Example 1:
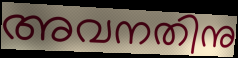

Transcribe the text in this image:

അവനതിനു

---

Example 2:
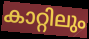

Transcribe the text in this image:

കാറ്റിലും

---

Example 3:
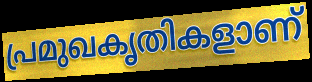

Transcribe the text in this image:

പ്രമുഖകൃതികളാണ്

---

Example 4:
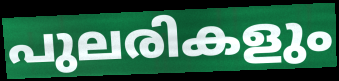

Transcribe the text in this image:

പുലരികളും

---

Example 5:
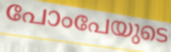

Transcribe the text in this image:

പോംപേയുടെ